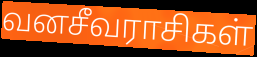
வனசீவராசிகள்